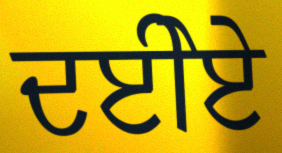
ਦਈੇਏ